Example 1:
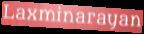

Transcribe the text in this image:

Laxminarayan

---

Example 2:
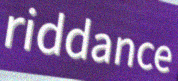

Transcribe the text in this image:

riddance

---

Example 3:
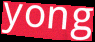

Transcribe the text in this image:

yong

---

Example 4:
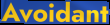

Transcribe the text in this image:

Avoidant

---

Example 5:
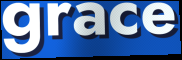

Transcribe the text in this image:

grace